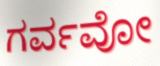
ಗರ್ವವೋ